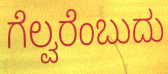
ಗೆಲ್ವರೆಂಬುದು